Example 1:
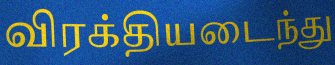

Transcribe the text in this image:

விரக்தியடைந்து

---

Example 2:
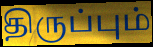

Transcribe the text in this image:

திருப்பும்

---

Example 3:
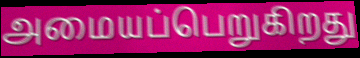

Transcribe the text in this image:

அமையப்பெறுகிறது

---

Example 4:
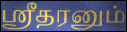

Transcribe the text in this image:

ஸ்ரீதரனும்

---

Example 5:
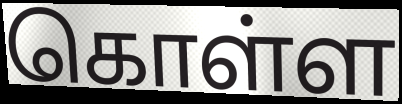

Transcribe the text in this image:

கொள்ள